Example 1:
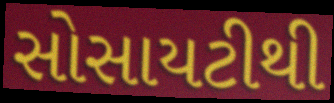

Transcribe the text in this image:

સોસાયટીથી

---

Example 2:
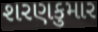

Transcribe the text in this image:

શરણકુમાર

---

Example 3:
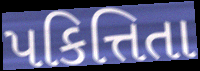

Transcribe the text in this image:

પકિત્તિતા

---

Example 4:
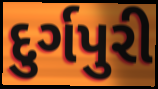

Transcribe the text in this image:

દુર્ગપુરી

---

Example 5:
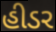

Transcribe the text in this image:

હીડર